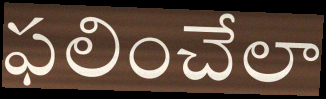
ఫలించేలా